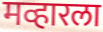
मव्हारला